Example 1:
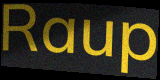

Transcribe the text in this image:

Raup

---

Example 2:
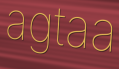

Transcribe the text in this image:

agtaa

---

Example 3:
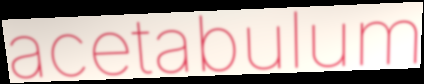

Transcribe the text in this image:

acetabulum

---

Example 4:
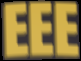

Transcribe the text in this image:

EEE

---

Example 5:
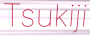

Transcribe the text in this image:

Tsukiji